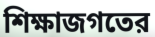
শিক্ষাজগতের